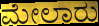
ಮೇಲಾರು